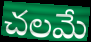
చలమే